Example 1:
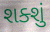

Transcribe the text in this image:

શક્શું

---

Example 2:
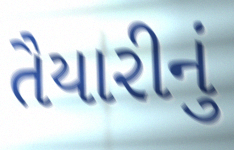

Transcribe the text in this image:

તૈયારીનું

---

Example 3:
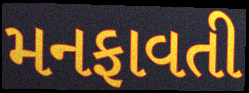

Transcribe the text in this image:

મનફાવતી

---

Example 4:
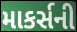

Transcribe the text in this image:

માકર્સની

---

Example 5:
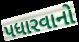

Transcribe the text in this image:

પધારવાનો